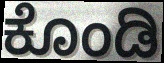
ಕೊಂಡಿ